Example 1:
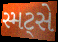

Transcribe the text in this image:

સ્મટ્સે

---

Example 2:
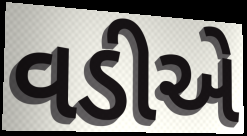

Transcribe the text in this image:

વડીએ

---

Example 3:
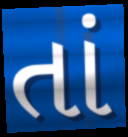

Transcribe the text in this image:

તાં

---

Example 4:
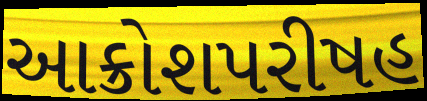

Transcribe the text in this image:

આક્રોશપરીષહ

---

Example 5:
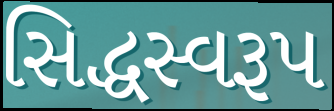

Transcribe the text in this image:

સિદ્ધસ્વરૂપ